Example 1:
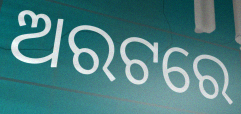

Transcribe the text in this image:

ଅରଟରେ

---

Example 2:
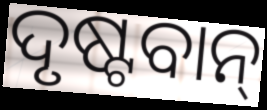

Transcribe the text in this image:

ଦୃଷ୍ଟବାନ୍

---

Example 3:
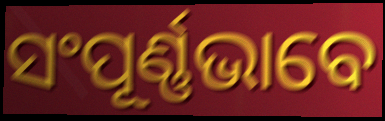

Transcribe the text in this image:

ସଂପୂର୍ଣ୍ଣଭାବେ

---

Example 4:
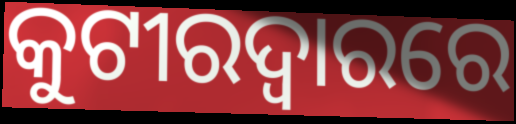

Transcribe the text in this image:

କୁଟୀରଦ୍ୱାରରେ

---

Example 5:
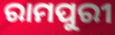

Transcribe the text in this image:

ରାମପୁରୀ